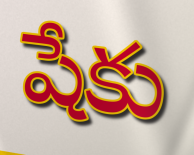
షేకు